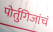
पोर्तुगिजांचं